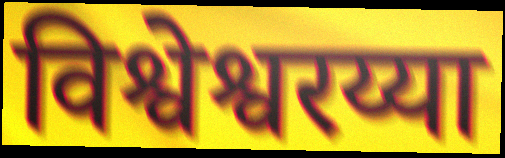
विश्वेश्वरय्या